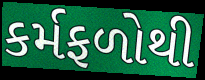
કર્મફળોથી